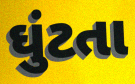
ઘુંટતા